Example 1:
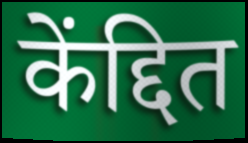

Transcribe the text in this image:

केंद्दित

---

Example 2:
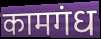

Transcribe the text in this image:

कामगंध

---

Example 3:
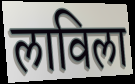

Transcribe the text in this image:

लाविला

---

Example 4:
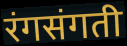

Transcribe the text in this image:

रंगसंगती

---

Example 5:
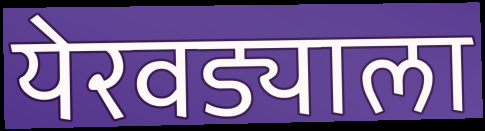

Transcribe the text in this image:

येरवड्याला